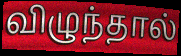
விழுந்தால்